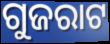
ଗୁଜରାଟ